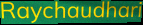
Raychaudhari